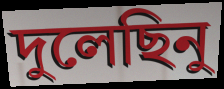
দুলেছিনু